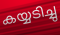
കയ്യടിച്ചു